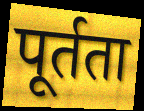
पूर्तता